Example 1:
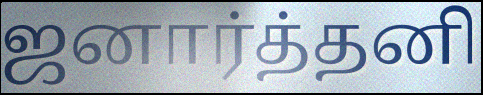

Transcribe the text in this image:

ஜனார்த்தனி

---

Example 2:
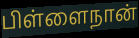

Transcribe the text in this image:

பிள்ளைநான்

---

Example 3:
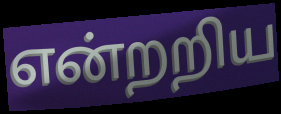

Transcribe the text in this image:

என்றறிய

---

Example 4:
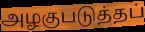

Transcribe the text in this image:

அழகுபடுத்தப்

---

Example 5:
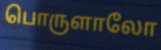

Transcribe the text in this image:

பொருளாலோ